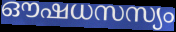
ഔഷധസസ്യം